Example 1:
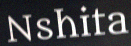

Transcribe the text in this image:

Nshita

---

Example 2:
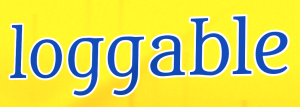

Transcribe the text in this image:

loggable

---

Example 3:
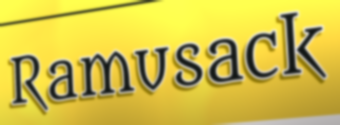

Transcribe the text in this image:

Ramusack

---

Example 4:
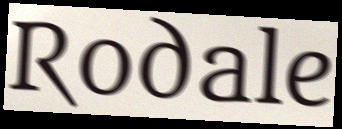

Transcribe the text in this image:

Rodale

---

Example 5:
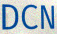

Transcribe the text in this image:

DCN